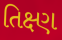
તિક્ષ્ણ